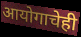
आयोगाचेही